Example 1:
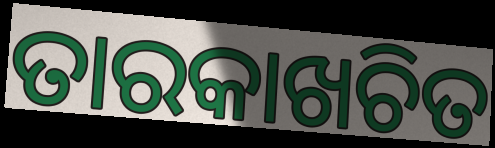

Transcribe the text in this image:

ତାରକାଖଚିତ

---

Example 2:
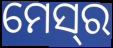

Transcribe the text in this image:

ମେସ୍‌ର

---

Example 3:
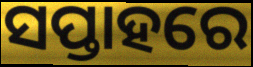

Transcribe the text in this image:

ସପ୍ତାହରେ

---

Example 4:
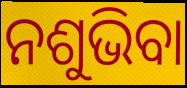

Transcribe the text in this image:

ନଶୁଭିବା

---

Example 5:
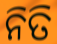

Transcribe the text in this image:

ନିତି